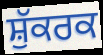
ਸ਼ੁੱਕਰਕ